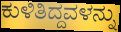
ಕುಳಿತಿದ್ದವಳನ್ನು